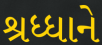
શ્રધ્ધાને